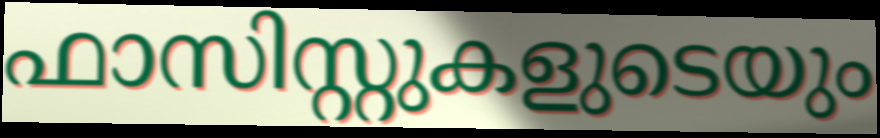
ഫാസിസ്റ്റുകളുടെയും